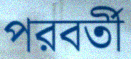
পরবর্তী